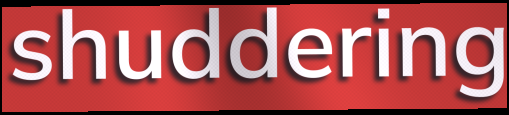
shuddering